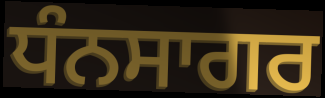
ਧੰਨਸਾਗਰ